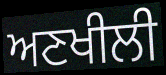
ਅਣਖੀਲੀ